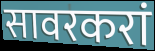
सावरकरां